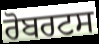
ਰੋਬਰਟਸ